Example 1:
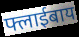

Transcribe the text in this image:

फ्लाईबाय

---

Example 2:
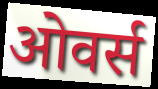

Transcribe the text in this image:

ओवर्स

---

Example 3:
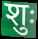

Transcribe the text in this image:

शुः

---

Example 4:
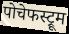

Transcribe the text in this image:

पोचेफस्ट्रूम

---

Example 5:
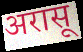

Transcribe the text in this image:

अरासू